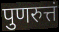
पुणरुत्तं